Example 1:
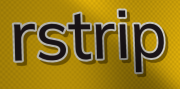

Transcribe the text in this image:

rstrip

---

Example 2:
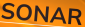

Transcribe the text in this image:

SONAR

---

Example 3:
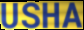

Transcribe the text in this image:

USHA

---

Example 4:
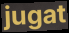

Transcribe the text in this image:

jugat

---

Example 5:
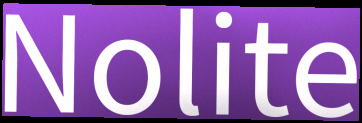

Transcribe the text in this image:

Nolite